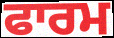
ਫਾਰਮ